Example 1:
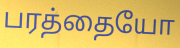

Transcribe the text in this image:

பரத்தையோ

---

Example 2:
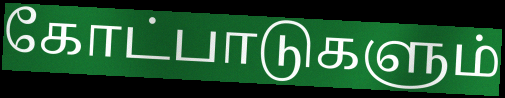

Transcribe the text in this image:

கோட்பாடுகளும்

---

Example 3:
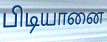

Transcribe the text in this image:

பிடியானை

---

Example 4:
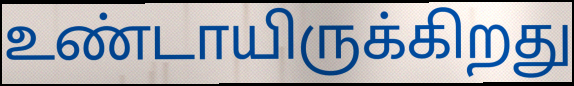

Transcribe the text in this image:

உண்டாயிருக்கிறது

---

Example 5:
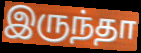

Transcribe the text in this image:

இருந்தா